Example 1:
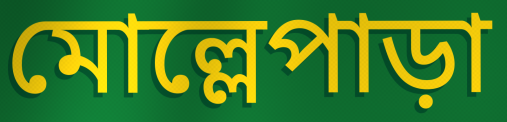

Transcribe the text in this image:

মোল্লেপাড়া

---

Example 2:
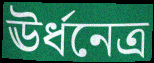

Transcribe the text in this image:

ঊর্ধনেত্র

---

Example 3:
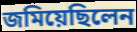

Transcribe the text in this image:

জমিয়েছিলেন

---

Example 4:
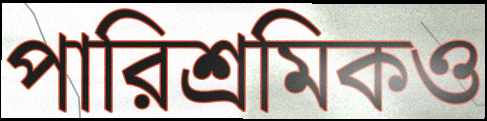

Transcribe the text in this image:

পারিশ্রমিকও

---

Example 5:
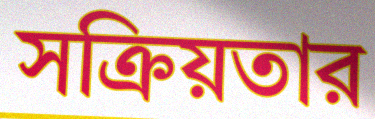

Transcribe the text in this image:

সক্রিয়তার